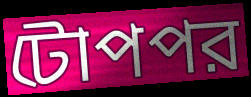
টোপপর